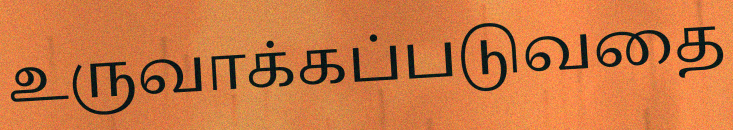
உருவாக்கப்படுவதை